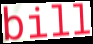
bill